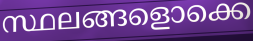
സ്ഥലങ്ങളൊക്കെ